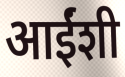
आईंशी